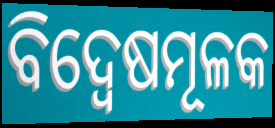
ବିଦ୍ୱେଷମୂଳକ